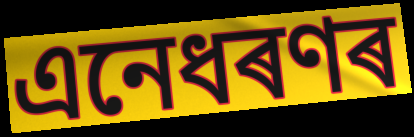
এনেধৰণৰ